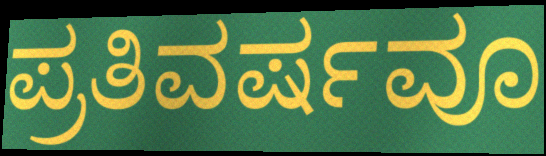
ಪ್ರತಿವರ್ಷವೂ